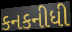
કનકનીધી